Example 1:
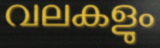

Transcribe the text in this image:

വലകളും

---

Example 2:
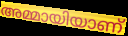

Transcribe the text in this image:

അമ്മായിയാണ്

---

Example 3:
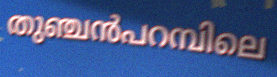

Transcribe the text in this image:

തുഞ്ചൻപറമ്പിലെ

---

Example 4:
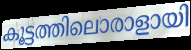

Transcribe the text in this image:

കൂട്ടത്തിലൊരാളായി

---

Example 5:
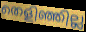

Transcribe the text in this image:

തെളിഞ്ഞില്ല